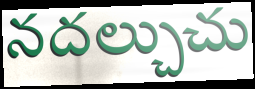
నదల్చుచు